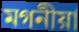
মগনীয়া